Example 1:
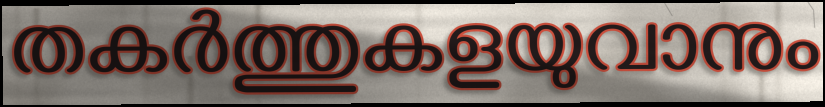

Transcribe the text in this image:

തകർത്തുകളയുവാനും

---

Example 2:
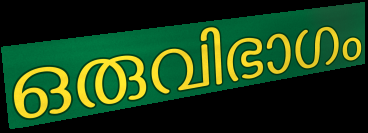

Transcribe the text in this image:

ഒരുവിഭാഗം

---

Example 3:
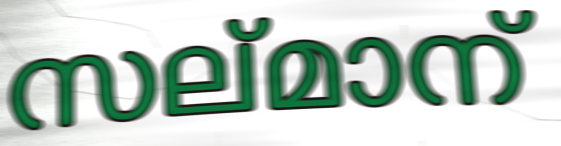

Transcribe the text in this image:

സല്മാന്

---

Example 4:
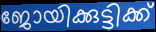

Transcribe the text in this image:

ജോയിക്കുട്ടിക്ക്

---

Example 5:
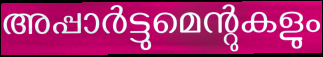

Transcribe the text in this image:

അപ്പാർട്ടുമെന്റുകളും